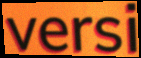
versi